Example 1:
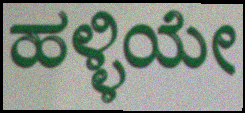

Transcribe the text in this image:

ಹಳ್ಳಿಯೇ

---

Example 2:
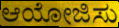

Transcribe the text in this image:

ಆಯೋಜಿಸು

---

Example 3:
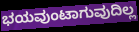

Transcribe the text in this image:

ಭಯವುಂಟಾಗುವುದಿಲ್ಲ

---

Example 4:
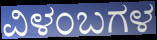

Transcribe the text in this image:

ವಿಳಂಬಗಳ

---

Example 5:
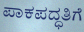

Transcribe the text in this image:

ಪಾಕಪದ್ಧತಿಗೆ